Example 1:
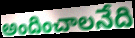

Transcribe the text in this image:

అందించాలనేది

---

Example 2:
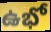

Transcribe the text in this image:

ఉభో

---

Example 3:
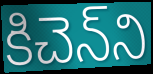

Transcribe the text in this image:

కిచెన్‌ని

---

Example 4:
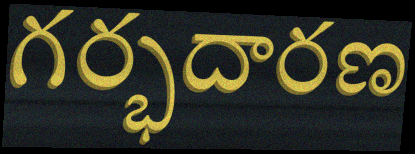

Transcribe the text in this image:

గర్భదారణ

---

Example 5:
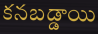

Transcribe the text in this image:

కనబడ్డాయి